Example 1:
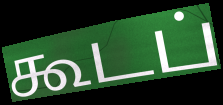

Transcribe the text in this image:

கூடப்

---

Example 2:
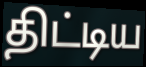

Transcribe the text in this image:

திட்டிய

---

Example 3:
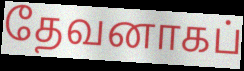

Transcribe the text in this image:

தேவனாகப்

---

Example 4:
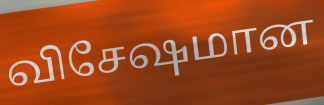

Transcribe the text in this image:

விசேஷமான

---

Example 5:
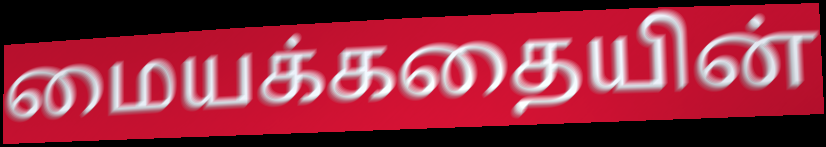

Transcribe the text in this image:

மையக்கதையின்